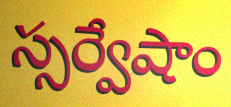
స్సర్వేషాం